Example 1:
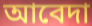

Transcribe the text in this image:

আবেদা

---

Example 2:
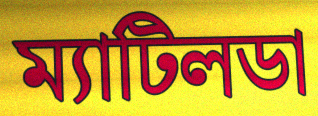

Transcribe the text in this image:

ম্যাটিলডা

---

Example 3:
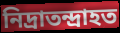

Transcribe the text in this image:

নিদ্রাতন্দ্রাহত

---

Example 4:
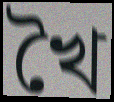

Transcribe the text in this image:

খৈ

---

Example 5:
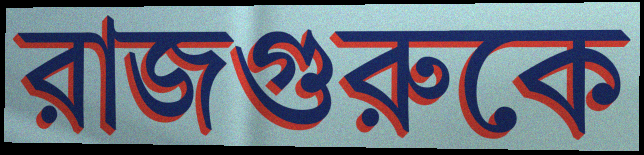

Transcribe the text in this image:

রাজগুরুকে